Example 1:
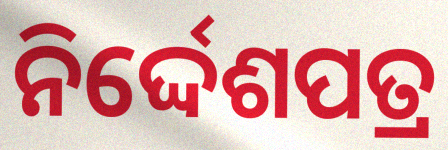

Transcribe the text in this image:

ନିର୍ଦ୍ଦେଶପତ୍ର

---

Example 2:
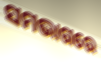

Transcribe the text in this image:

ସମଭାଗରେ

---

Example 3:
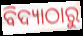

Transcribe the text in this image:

ବିଦ୍ୟାଠାରୁ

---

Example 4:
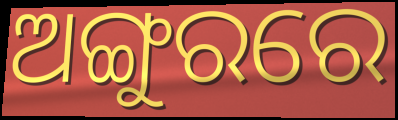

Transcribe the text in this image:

ଅଙ୍ଗୁରରେ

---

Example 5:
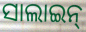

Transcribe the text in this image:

ସାଲାଇନ୍